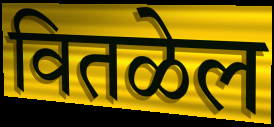
वितळेल